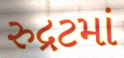
રુદ્રટમાં